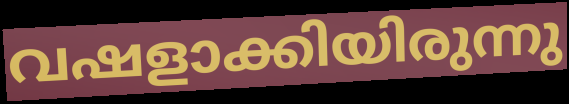
വഷളാക്കിയിരുന്നു